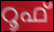
റൂഫ്